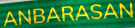
ANBARASAN